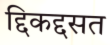
द्दिकद्दसत